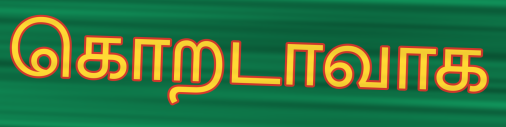
கொறடாவாக